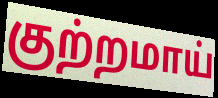
குற்றமாய்